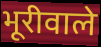
भूरीवाले